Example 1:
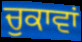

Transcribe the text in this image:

ਚੁਕਾਵਾਂ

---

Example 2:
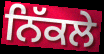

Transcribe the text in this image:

ਨਿੱਕਲੇ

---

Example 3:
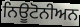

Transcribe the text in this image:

ਨਿਊਟੋਨੀਅਨ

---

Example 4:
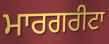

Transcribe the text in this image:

ਮਾਰਗਰੀਟਾ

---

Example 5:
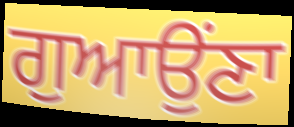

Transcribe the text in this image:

ਗੁਆਉਂਣਾ